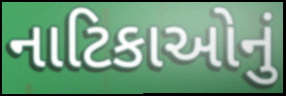
નાટિકાઓનું